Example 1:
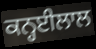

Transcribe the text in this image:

ਕਨ੍ਹਈਲਾਲ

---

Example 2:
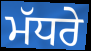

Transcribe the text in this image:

ਮੱਧਰੇ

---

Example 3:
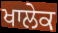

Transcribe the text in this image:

ਖਾਲੇਕ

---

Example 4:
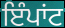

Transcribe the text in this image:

ਇੰਪਾਂਟ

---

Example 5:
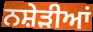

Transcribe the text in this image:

ਨਸ਼ੇੜੀਆਂ